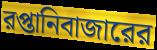
রপ্তানিবাজারের